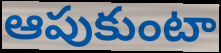
ఆపుకుంటా